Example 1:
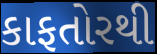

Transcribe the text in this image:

કાફતોરથી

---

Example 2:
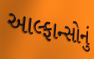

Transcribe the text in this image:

આલ્ફાન્સોનું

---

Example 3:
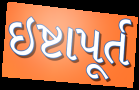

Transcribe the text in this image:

ઇષ્ટાપૂર્ત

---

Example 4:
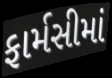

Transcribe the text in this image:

ફાર્મસીમાં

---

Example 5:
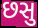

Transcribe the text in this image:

છસુ